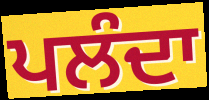
ਪਲੰਦਾ